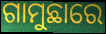
ଗାମୁଛାରେ